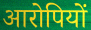
आरोपियों